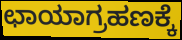
ಛಾಯಾಗ್ರಹಣಕ್ಕೆ